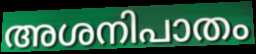
അശനിപാതം